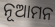
ନୂଆମନ